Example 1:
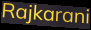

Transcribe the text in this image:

Rajkarani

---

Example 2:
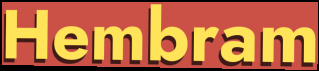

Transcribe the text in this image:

Hembram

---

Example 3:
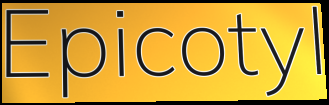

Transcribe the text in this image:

Epicotyl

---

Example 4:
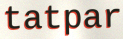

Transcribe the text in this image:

tatpar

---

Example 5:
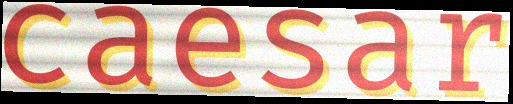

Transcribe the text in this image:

caesar